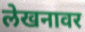
लेखनावर